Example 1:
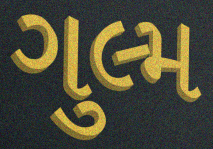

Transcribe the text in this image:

ગુલ્મ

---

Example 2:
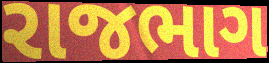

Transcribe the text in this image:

રાજભાગ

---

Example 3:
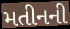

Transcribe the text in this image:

મતીનની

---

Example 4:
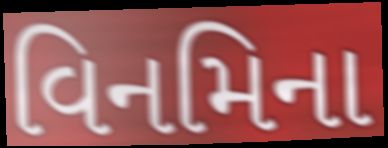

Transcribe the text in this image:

વિનમિના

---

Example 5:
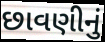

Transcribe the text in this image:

છાવણીનું